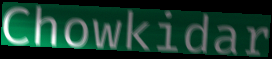
Chowkidar